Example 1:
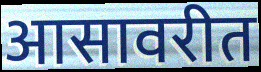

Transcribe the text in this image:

आसावरीत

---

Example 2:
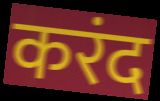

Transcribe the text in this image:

करंद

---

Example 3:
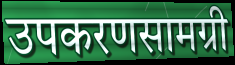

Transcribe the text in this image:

उपकरणसामग्री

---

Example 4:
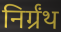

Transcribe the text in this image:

निर्ग्रंथ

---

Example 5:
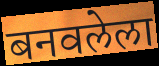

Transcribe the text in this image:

बनवलेला